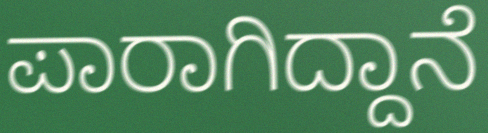
ಪಾರಾಗಿದ್ದಾನೆ